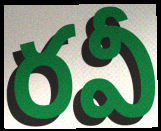
రవీ